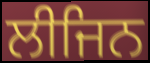
ਲੀਜਿਨ